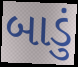
બાડું